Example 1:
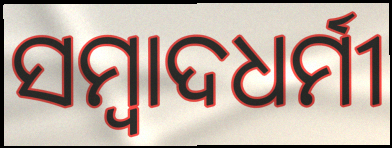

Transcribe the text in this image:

ସମ୍ବାଦଧର୍ମୀ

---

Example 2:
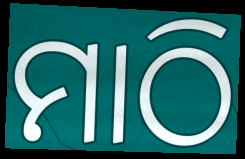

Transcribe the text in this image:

ମାଠି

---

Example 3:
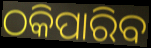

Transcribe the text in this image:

ଠକିପାରିବ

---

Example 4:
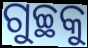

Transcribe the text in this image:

ଗୁଚ୍ଛକୁ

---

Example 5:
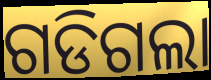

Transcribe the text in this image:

ଗଡିଗଲା